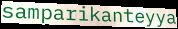
samparikanteyya